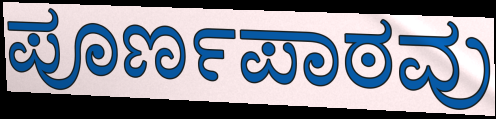
ಪೂರ್ಣಪಾಠವು